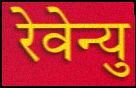
रेवेन्यु